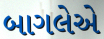
બાગલેએ